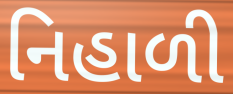
નિહાળી